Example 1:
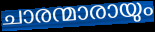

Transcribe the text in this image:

ചാരന്മാരായും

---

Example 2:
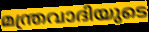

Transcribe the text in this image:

മന്ത്രവാദിയുടെ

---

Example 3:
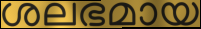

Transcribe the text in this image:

ശലഭമായ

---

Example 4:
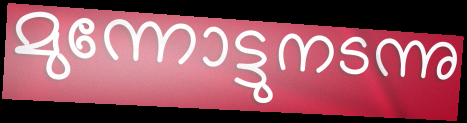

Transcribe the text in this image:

മുന്നോട്ടുനടന്നു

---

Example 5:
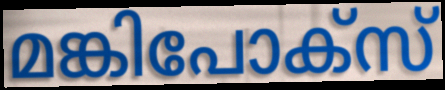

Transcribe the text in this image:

മങ്കിപോക്സ്